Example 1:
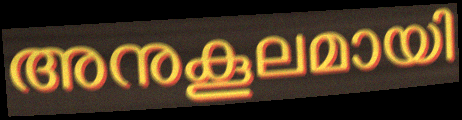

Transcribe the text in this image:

അനുകൂലമായി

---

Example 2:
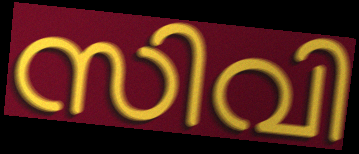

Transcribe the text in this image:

സിവി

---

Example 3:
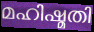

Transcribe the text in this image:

മഹിഷ്മതി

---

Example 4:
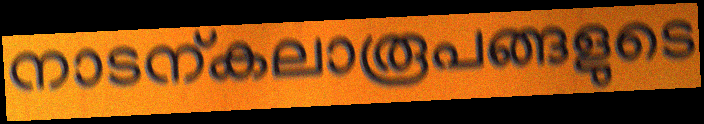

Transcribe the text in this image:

നാടന്കലാരൂപങ്ങളുടെ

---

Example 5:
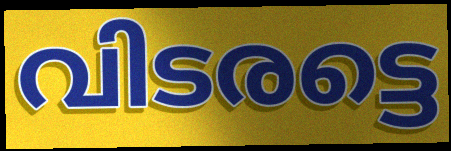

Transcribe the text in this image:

വിടരട്ടെ